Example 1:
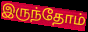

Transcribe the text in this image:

இருந்தோம்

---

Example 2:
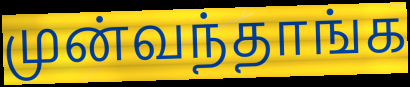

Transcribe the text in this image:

முன்வந்தாங்க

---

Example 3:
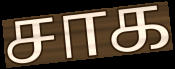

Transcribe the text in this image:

சாக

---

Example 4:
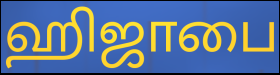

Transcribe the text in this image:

ஹிஜாபை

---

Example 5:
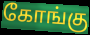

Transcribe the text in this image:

கோங்கு